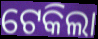
ଟେକିଲା